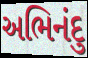
અભિનંદુ